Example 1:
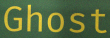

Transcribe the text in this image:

Ghost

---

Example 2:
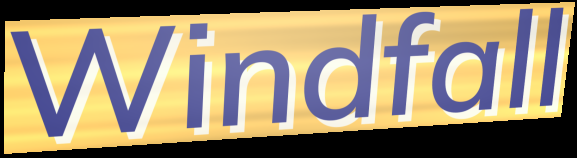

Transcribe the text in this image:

Windfall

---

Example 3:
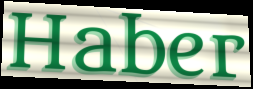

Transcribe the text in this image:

Haber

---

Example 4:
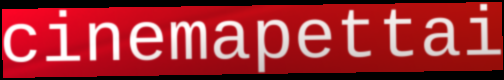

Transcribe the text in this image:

cinemapettai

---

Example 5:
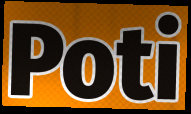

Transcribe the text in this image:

Poti